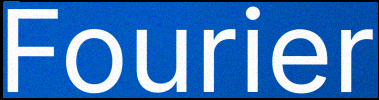
Fourier